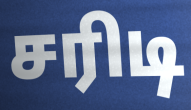
சரிடி